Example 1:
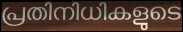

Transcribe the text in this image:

പ്രതിനിധികളുടെ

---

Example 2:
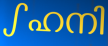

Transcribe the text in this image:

ഽഹനി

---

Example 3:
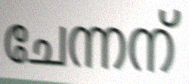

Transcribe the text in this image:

ചേന്നന്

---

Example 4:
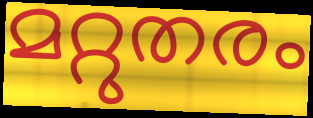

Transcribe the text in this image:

മറ്റുതരം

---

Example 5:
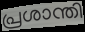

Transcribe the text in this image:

പ്രശാന്തി